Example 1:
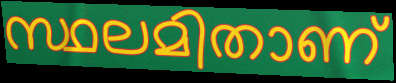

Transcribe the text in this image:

സ്ഥലമിതാണ്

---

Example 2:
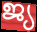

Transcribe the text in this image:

ജ്യ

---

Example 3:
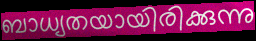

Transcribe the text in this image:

ബാധ്യതയായിരിക്കുന്നു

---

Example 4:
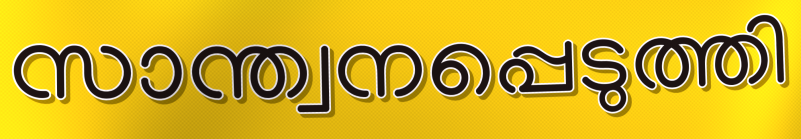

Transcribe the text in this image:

സാന്ത്വനപ്പെടുത്തി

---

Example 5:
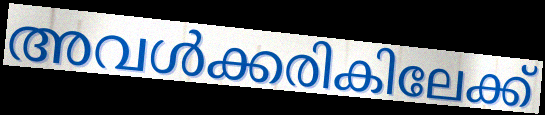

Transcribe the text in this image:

അവൾക്കരികിലേക്ക്